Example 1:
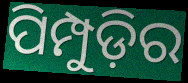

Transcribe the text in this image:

ପିମ୍ପୁଡ଼ିର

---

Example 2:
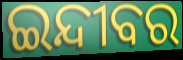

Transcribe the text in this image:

ଇନ୍ଦୀବର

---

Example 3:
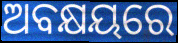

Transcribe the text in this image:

ଅବକ୍ଷୟରେ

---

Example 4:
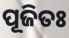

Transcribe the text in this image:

ପୂଜିତଃ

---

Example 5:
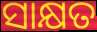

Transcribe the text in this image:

ସାକ୍ଷତ